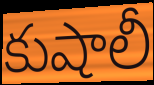
కుషాలీ